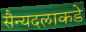
सैन्यदलाकडे